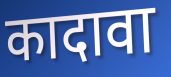
कादावा